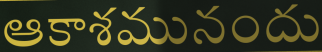
ఆకాశమునందు